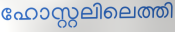
ഹോസ്റ്റലിലെത്തി